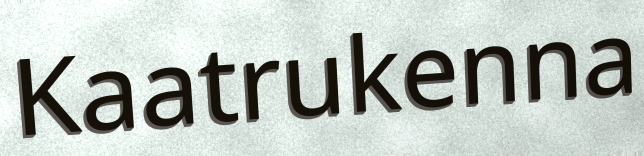
Kaatrukenna